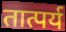
तात्पर्य